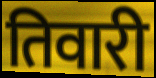
तिवारी